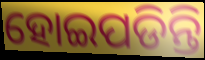
ହୋଇପଡିନ୍ତି